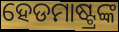
ହେଡମାଷ୍ଟ୍ରଙ୍କ